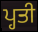
ਪ੍ਹਤੀ